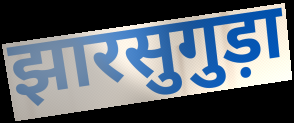
झारसुगुड़ा